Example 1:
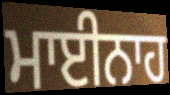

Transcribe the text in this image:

ਮਾਈਨਾਹ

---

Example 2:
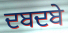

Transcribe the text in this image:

ਦਬਦਬੇ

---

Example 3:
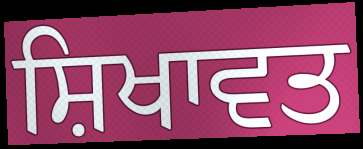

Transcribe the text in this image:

ਸ਼ਿਖਾਵਤ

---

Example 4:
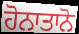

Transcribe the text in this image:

ਹੋਨਾਤਾਨੋ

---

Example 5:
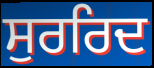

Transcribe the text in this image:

ਸੁਰਰਿਦ